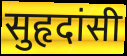
सुहृदांसी